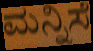
ಮನ್ನಿಸೆ